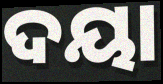
ଦୟା